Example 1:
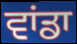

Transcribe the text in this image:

ਵਾਂਡਾ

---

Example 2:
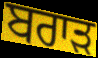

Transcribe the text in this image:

ਬਰਾੜ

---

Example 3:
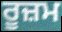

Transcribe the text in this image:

ਰੂਜ਼ਮ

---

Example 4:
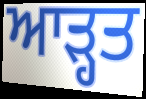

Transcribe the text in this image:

ਆੜ੍ਹਤ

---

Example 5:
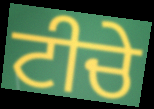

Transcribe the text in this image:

ਟੀਚੇ